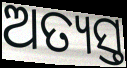
ଅତ୍ୟସ୍ତ